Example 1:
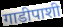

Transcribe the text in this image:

गाडीपाशी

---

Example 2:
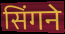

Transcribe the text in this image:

सिंगने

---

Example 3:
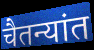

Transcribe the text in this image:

चैतन्यांत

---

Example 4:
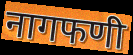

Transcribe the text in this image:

नागफणी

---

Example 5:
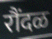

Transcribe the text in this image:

रौंदळ